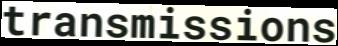
transmissions